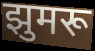
झुमरू